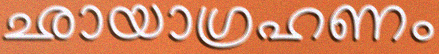
ഛായാഗ്രഹണം